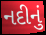
નદીનું